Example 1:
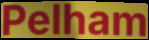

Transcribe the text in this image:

Pelham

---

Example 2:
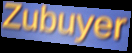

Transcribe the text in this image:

Zubuyer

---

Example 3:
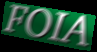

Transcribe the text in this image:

FOIA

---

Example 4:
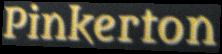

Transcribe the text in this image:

Pinkerton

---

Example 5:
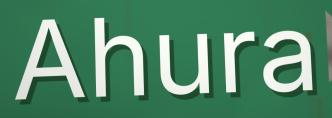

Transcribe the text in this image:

Ahura